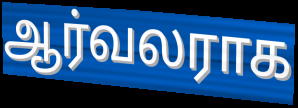
ஆர்வலராக